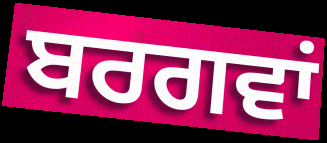
ਬਰਗਵਾਂ